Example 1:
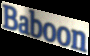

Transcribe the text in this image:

Baboon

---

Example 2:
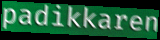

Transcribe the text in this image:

padikkaren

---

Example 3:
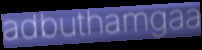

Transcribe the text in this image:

adbuthamgaa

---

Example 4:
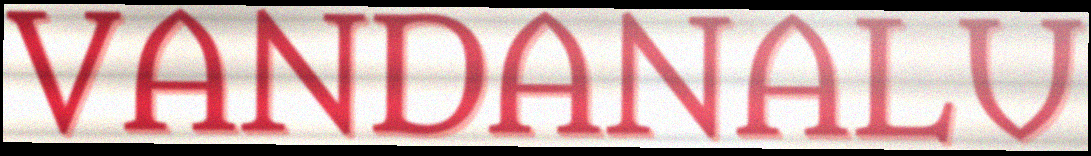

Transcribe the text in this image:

VANDANALU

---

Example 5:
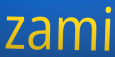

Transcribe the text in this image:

zami